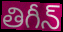
తిగీన్